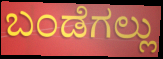
ಬಂಡೆಗಲ್ಲು